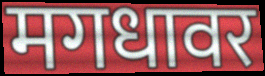
मगधावर